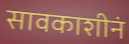
सावकाशीनं